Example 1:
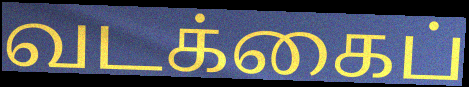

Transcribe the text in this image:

வடக்கைப்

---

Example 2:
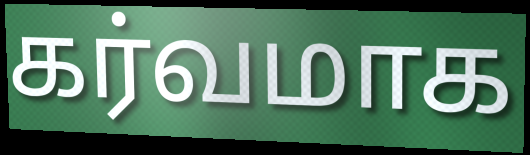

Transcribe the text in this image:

கர்வமாக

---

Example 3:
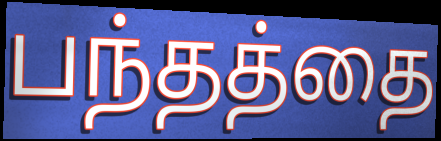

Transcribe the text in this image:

பந்தத்தை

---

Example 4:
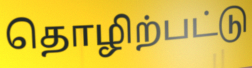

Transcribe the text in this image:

தொழிற்பட்டு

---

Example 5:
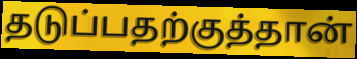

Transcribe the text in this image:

தடுப்பதற்குத்தான்